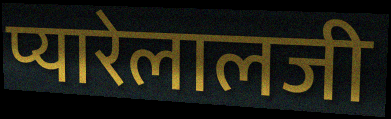
प्यारेलालजी